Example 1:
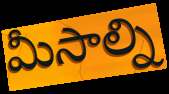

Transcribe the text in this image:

మీసాల్ని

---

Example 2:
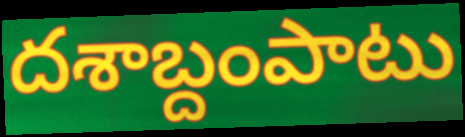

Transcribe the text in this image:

దశాబ్దంపాటు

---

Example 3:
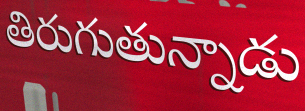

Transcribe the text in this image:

తిరుగుతున్నాడు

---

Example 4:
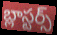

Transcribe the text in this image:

బ్లాస్టర్స్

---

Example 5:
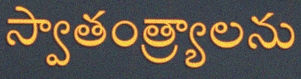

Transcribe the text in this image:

స్వాతంత్ర్యాలను